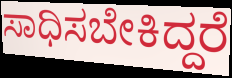
ಸಾಧಿಸಬೇಕಿದ್ದರೆ